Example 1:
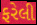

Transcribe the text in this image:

ફરેલી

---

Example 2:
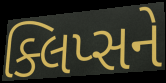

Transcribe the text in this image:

ક્લિપ્સને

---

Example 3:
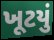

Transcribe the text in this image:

ખૂટયું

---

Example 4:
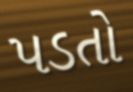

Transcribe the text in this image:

પડતો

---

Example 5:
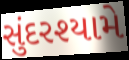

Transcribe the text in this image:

સુંદરશ્યામે